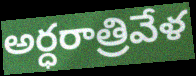
అర్ధరాత్రివేళ